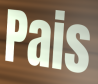
Pais